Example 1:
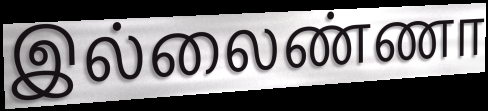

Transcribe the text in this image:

இல்லைண்ணா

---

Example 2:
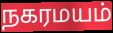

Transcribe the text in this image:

நகரமயம்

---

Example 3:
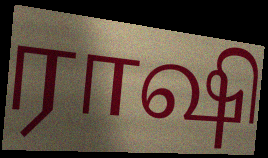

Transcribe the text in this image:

ராஷி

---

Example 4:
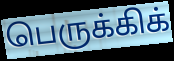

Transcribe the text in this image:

பெருக்கிக்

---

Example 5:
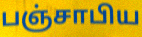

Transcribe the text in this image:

பஞ்சாபிய